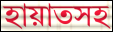
হায়াতসহ